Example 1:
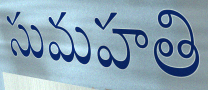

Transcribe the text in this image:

సుమహతి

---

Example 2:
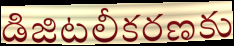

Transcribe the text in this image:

డిజిటలీకరణకు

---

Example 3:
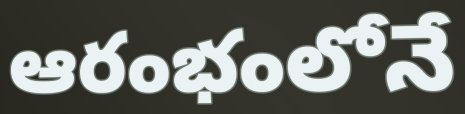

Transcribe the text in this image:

ఆరంభంలోనే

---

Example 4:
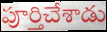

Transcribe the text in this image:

పూర్తిచేశాడు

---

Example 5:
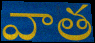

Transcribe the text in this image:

వాత